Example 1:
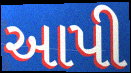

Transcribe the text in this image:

આપી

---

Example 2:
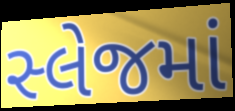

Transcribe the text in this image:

સ્લેજમાં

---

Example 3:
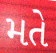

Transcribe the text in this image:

મતે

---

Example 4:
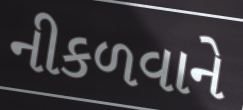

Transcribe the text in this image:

નીકળવાને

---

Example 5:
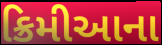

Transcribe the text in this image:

ક્રિમીઆના